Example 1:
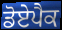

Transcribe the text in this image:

ਡੋਏਪੈਕ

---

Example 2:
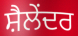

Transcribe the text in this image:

ਸ਼ੈਲੇਂਦਰ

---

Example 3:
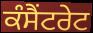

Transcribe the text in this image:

ਕੰਸੈਂਟਰੇਟ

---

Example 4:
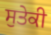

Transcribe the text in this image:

ਸੁਤੇਕੀ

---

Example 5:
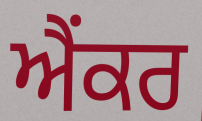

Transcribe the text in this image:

ਐਂਕਰ